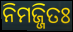
ନିମଜ୍ଜିତଃ